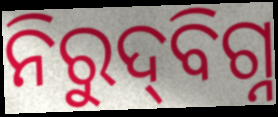
ନିରୁଦ୍‌ବିଗ୍ନ